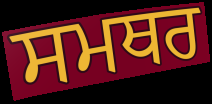
ਸਮਥਰ